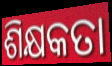
ଶିକ୍ଷକତା